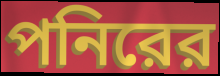
পনিরের